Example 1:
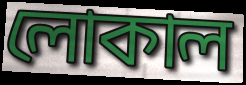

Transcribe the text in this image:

লোকাল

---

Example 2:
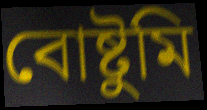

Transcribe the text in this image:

বোষ্টুমি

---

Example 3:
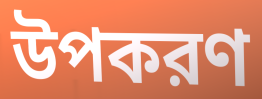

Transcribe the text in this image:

উপকরণ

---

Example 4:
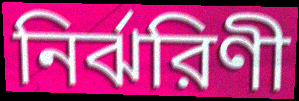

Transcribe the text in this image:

নির্ঝরিণী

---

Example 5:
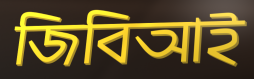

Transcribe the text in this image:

জিবিআই